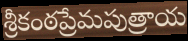
శ్రీకంఠప్రేమపుత్రాయ